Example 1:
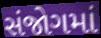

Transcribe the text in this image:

સંજોગમાં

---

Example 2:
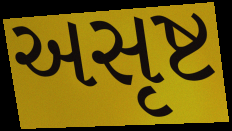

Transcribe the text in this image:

અસૃષ્ટ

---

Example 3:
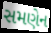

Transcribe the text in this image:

સમણેન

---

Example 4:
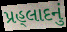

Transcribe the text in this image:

પ્રહ્‌લાદનું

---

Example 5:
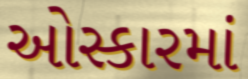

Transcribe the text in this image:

ઓસ્કારમાં